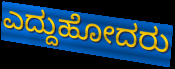
ಎದ್ದುಹೋದರು